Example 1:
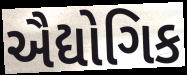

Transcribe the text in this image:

ઐદ્યોગિક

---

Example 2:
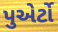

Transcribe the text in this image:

પુએર્ટો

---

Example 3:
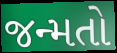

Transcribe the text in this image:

જન્મતો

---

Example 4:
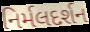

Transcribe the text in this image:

નિર્મલદર્શન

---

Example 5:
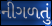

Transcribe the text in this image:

નીગળતું